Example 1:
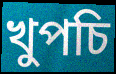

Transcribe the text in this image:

খুপচি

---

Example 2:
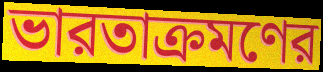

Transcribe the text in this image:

ভারতাক্রমণের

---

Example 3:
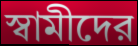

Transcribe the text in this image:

স্বামীদের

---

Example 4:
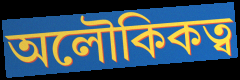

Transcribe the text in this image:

অলৌকিকত্ব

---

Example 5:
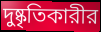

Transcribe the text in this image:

দুষ্কৃতিকারীর